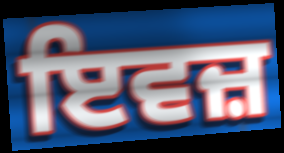
ਇਵਜ਼